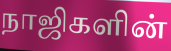
நாஜிகளின்